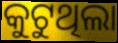
କୁଟୁଥିଲା